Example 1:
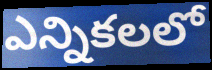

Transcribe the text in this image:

ఎన్నికలలో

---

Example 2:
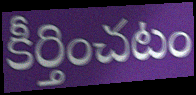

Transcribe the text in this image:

కీర్తించటం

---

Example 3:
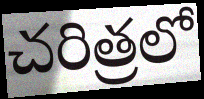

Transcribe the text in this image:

చరిత్రలో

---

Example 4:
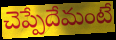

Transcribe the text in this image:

చెప్పేదేమంటే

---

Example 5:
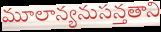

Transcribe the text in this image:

మూలాన్యనుసన్తతాని